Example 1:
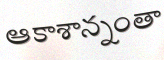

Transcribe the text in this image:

ఆకాశాన్నంతా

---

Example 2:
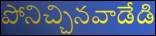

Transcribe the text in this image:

పోనిచ్చినవాడేడి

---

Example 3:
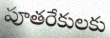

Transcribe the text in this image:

పూతరేకులకు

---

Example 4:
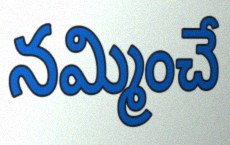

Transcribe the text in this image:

నమ్మించే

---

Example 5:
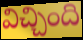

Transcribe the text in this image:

విచ్చింది